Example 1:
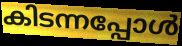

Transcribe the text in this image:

കിടന്നപ്പോൾ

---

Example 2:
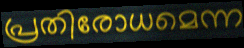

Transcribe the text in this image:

പ്രതിരോധമെന്ന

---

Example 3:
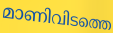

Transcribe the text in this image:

മാണിവിടത്തെ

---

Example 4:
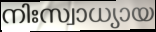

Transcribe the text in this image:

നിഃസ്വാധ്യായ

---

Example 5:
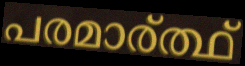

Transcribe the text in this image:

പരമാര്ത്ഥ്